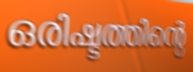
ഒരിഷ്ടത്തിന്റെ